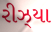
રીઝ્યા